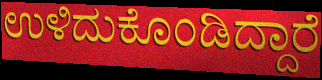
ಉಳಿದುಕೊಂಡಿದ್ದಾರೆ